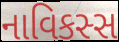
નાવિકસ્સ